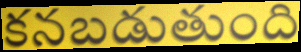
కనబడుతుంది